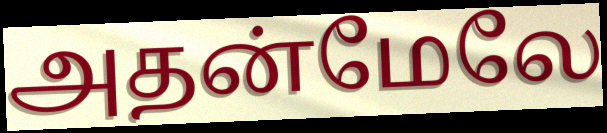
அதன்மேலே